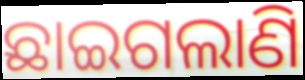
ଛାଇଗଲାଣି